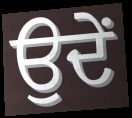
ਉਦੇਂ